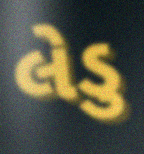
લેડુ